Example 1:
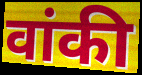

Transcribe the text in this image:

वांकी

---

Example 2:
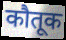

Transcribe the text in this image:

कौतूक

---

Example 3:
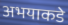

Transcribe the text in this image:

अभयाकडे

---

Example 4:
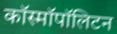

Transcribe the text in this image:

कॉस्मॉपॉलिटन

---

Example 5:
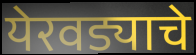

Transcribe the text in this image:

येरवड्याचे